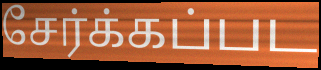
சேர்க்கப்பட